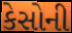
કેસોની